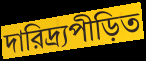
দারিদ্র্যপীড়িত